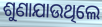
ଶୁଣାଯାଉଥିଲେ